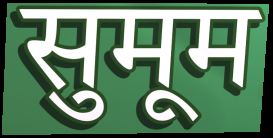
सुमूम